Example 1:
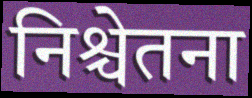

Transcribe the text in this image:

निश्चेतना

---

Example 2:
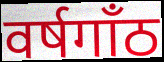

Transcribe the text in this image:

वर्षगाँठ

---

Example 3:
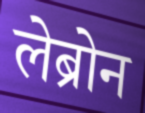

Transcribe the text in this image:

लेब्रोन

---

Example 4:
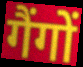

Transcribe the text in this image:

गैंगों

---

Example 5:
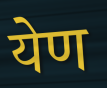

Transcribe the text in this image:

येण